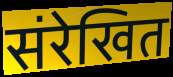
संरेखित